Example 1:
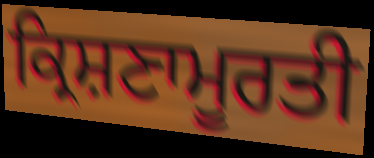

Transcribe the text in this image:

ਕ੍ਰਿਸ਼ਣਾਮੂਰਤੀ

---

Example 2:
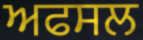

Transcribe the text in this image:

ਅਫਸਲ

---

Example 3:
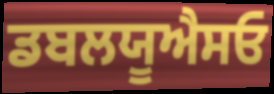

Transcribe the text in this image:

ਡਬਲਯੂਐਸਓ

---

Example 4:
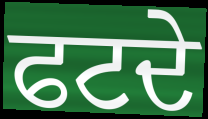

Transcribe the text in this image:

ਫਟਦੇ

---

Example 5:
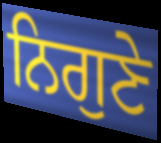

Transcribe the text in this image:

ਨਿਗੁਣੇ